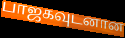
பாஜகவுடனான